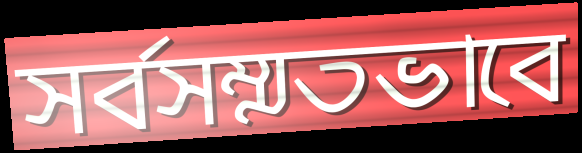
সর্বসম্মতভাবে